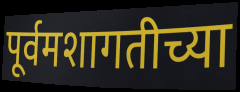
पूर्वमशागतीच्या